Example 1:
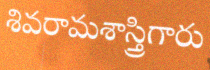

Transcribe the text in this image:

శివరామశాస్త్రిగారు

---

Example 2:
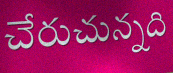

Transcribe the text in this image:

చేరుచున్నది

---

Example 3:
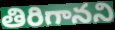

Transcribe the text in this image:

తిరిగానని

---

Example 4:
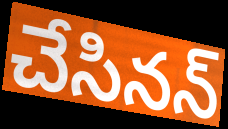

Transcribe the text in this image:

చేసినన్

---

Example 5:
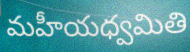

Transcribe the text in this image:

మహీయధ్వమితి